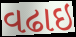
વઢાઇ